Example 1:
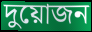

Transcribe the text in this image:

দুয়োজন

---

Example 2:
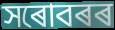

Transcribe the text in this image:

সৰোবৰৰ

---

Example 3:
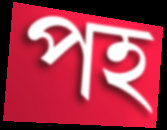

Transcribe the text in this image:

পহ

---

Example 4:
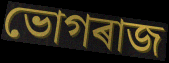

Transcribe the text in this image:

ভোগৰাজ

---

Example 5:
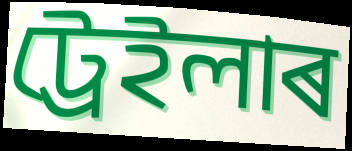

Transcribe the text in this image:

ট্ৰেইলাৰ